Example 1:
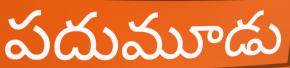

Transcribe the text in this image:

పదుమూడు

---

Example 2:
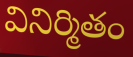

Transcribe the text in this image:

వినిర్మితం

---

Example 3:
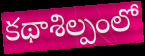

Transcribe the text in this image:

కథాశిల్పంలో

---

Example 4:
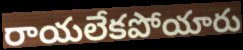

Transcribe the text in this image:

రాయలేకపోయారు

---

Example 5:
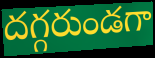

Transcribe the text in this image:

దగ్గరుండగా